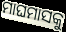
ମାଘମାସକୁ